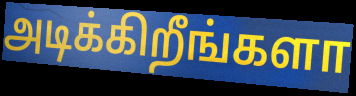
அடிக்கிறீங்களா